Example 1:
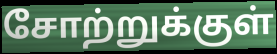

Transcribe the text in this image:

சோற்றுக்குள்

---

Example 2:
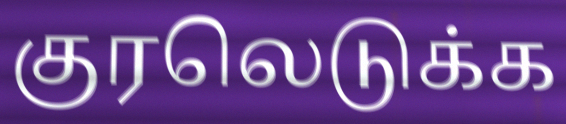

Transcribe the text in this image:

குரலெடுக்க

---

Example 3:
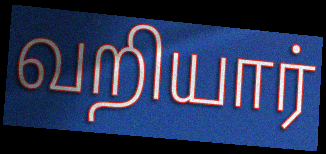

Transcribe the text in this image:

வறியார்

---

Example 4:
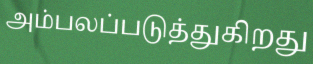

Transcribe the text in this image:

அம்பலப்படுத்துகிறது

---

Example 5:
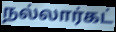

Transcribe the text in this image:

நல்லார்கட்